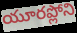
యూరప్లోని